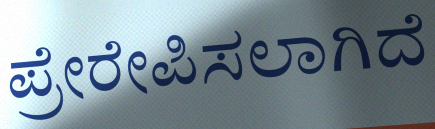
ಪ್ರೇರೇಪಿಸಲಾಗಿದೆ